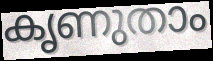
കൃണുതാം